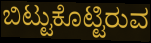
ಬಿಟ್ಟುಕೊಟ್ಟಿರುವ